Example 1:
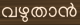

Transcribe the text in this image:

വഴുതാൻ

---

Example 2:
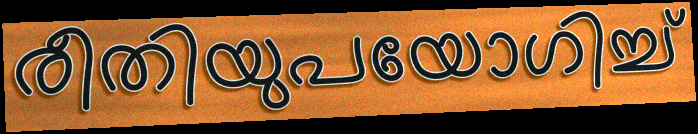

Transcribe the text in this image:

രീതിയുപയോഗിച്ച്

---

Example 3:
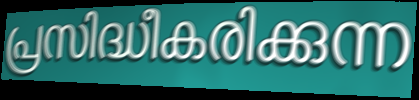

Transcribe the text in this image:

പ്രസിദ്ധീകരിക്കുന്ന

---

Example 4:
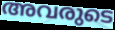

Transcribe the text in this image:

അവരുടെ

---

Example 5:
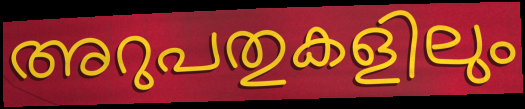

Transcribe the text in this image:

അറുപതുകളിലും